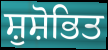
ਸ਼ੁਸ਼ੋਭਿਤ